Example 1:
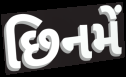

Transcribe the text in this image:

છિનમેં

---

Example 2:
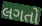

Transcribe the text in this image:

લગતો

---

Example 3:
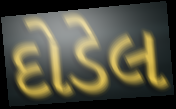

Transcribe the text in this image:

દોડેલ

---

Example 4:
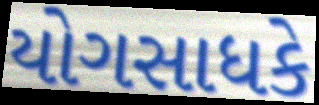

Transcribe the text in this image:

યોગસાધકે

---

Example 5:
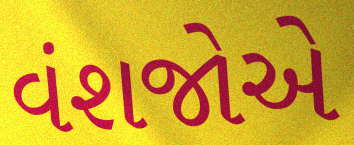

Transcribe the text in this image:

વંશજોએ